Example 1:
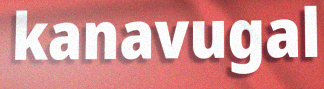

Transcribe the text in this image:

kanavugal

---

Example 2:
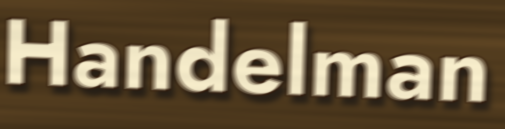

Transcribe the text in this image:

Handelman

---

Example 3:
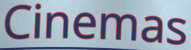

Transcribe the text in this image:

Cinemas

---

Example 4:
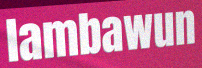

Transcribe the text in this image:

lambawun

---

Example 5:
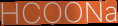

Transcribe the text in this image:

HCOONa